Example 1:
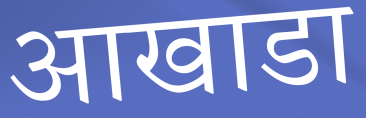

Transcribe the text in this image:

आखाडा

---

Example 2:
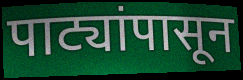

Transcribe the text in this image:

पाट्यांपासून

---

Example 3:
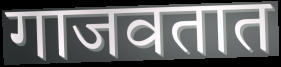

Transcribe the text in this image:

गाजवतात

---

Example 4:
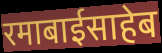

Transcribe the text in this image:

रमाबाईसाहेब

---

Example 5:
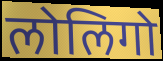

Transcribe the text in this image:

लोलिगो